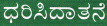
ಧರಿಸಿದಾತನೆ